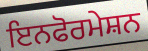
ਇਨਫੋਰਮੇਸ਼ਨ